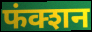
फंक्शन